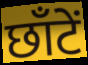
छाँटें